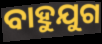
ବାହୁଯୁଗ